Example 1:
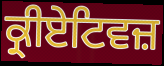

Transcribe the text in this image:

ਕ੍ਰੀਏਟਿਵਜ਼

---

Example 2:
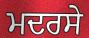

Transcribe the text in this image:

ਮਦਰਸੇ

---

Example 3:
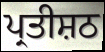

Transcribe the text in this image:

ਪ੍ਰਤੀਸ਼ਠ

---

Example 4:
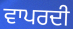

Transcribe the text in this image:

ਵਾਪਰਦੀ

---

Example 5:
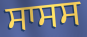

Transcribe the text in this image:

ਸਾਸਸ